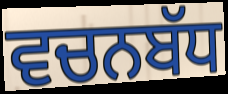
ਵਚਨਬੱਧ